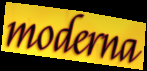
moderna